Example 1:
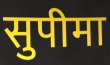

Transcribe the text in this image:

सुपीमा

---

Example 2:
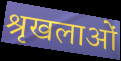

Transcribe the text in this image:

श्रृखलाओं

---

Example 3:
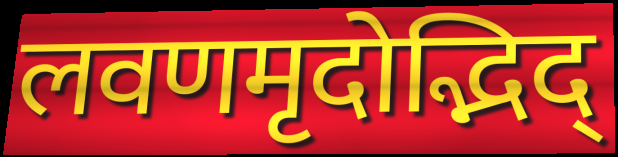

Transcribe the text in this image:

लवणमृदोद्भिद्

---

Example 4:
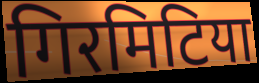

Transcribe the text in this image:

गिरमिटिया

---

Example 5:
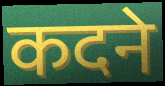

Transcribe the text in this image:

कदने